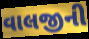
વાલજીની